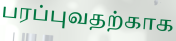
பரப்புவதற்காக